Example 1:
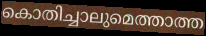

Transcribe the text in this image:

കൊതിച്ചാലുമെത്താത്ത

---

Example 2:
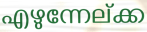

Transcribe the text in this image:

എഴുന്നേല്ക്ക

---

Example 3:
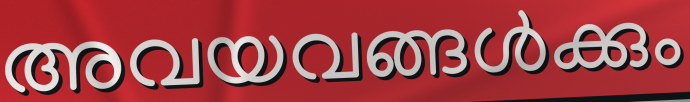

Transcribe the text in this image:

അവയവങ്ങൾക്കും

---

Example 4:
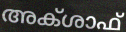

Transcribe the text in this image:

അക്ശാഫ്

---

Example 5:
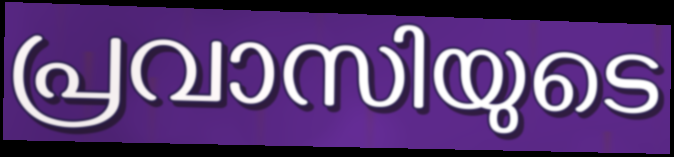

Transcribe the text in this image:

പ്രവാസിയുടെ